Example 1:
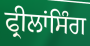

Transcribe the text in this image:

ਫ੍ਰੀਲਾਂਸਿੰਗ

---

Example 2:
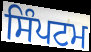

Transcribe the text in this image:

ਸਿੰਪਟਮ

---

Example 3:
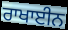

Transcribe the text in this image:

ਰਾਖਾਈਨ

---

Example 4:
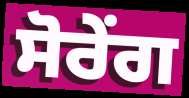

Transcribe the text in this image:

ਸੋਰੇਂਗ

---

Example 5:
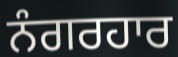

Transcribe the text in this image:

ਨੰਗਰਹਾਰ